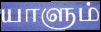
யாளும்